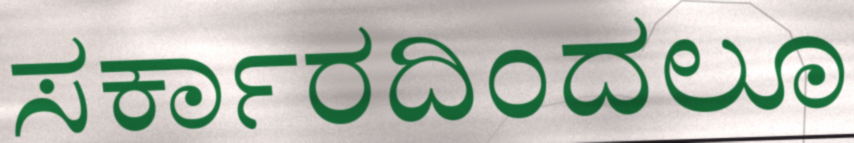
ಸರ್ಕಾರದಿಂದಲೂ